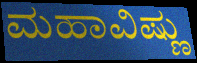
ಮಹಾವಿಷ್ಣು